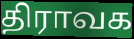
திராவக